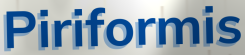
Piriformis